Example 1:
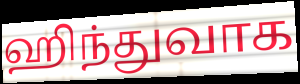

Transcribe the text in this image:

ஹிந்துவாக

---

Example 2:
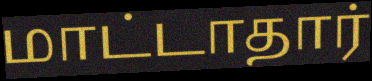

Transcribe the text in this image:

மாட்டாதார்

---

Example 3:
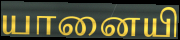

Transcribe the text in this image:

யானையி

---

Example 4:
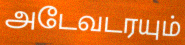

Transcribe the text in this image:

அடேவடரயும்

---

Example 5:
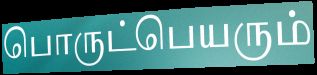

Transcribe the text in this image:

பொருட்பெயரும்